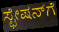
ಸ್ಟೇಷನ್‌ಗೆ